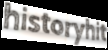
historyhit